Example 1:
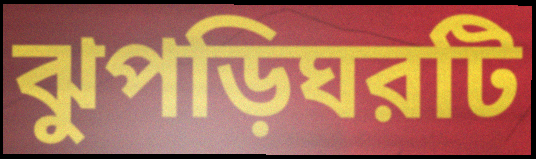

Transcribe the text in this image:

ঝুপড়িঘরটি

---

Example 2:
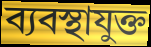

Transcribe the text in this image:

ব্যবস্থাযুক্ত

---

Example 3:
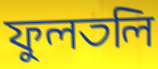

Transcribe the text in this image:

ফুলতলি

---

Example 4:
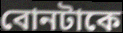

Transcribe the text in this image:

বোনটাকে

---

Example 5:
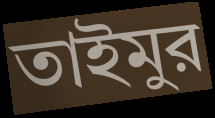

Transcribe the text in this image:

তাইমুর